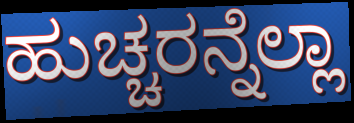
ಹುಚ್ಚರನ್ನೆಲ್ಲಾ